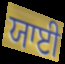
ਯਾਈ